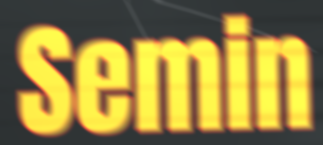
Semin